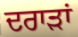
ਦਰਾੜਾਂ